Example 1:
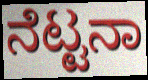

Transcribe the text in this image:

ನೆಟ್ಟನಾ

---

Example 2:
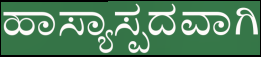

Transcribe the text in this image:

ಹಾಸ್ಯಾಸ್ಪದವಾಗಿ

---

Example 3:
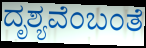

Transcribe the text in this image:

ದೃಶ್ಯವೆಂಬಂತೆ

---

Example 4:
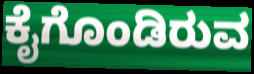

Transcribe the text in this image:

ಕೈಗೊಂಡಿರುವ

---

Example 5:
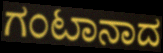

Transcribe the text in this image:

ಗಂಟಾನಾದ